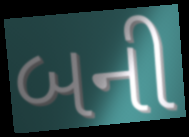
બની